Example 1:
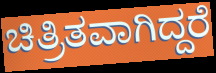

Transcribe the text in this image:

ಚಿತ್ರಿತವಾಗಿದ್ದರೆ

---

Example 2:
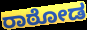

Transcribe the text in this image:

ರಾಠೋಡ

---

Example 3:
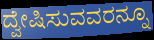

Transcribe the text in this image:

ದ್ವೇಷಿಸುವವರನ್ನೂ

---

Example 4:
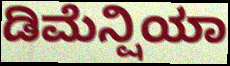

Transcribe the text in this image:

ಡಿಮೆನ್ಷಿಯಾ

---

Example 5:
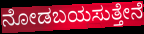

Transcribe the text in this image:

ನೋಡಬಯಸುತ್ತೇನೆ